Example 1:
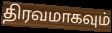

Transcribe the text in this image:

திரவமாகவும்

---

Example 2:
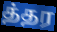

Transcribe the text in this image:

த்தர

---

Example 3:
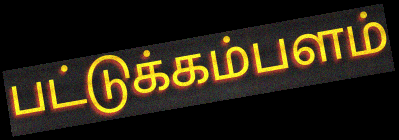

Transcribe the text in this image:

பட்டுக்கம்பளம்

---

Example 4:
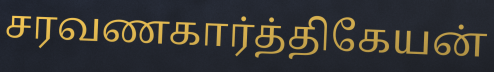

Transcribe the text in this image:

சரவணகார்த்திகேயன்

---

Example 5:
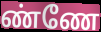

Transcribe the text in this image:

ண்ணே